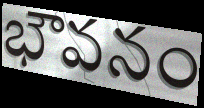
భౌవనం